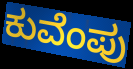
ಕುವೆಂಪು